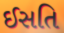
ઈસતિ